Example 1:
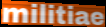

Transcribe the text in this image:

militiae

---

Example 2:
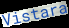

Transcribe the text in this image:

Vistara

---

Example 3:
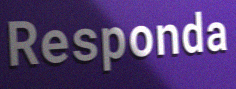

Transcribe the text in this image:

Responda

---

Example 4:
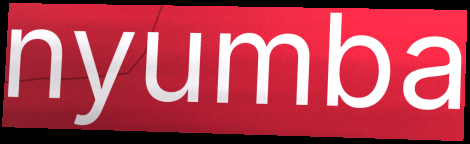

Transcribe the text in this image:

nyumba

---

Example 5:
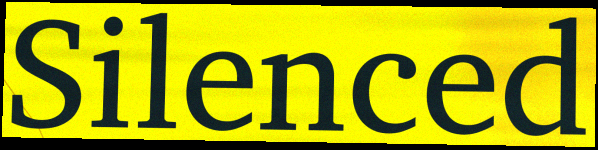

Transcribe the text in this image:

Silenced